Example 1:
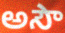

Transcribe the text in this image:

అసౌ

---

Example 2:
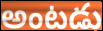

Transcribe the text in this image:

అంటడు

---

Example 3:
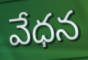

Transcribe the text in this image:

వేధన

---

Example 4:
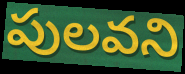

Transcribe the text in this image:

పులవని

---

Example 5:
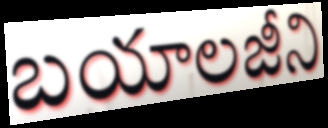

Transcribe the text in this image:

బయాలజీని